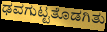
ಢವಗುಟ್ಟತೊಡಗಿತು